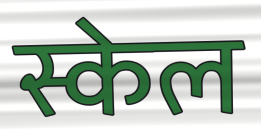
स्केल